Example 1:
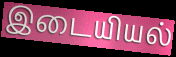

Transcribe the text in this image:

இடையியல்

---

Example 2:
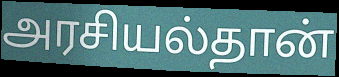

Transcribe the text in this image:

அரசியல்தான்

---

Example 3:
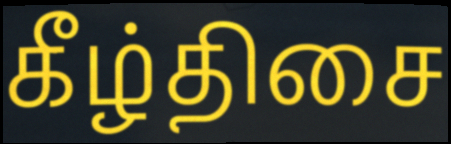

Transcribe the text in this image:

கீழ்திசை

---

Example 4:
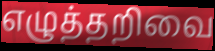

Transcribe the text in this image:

எழுத்தறிவை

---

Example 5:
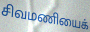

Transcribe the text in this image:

சிவமணியைக்